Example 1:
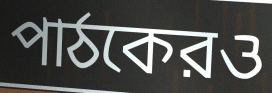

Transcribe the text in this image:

পাঠকেরও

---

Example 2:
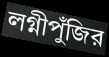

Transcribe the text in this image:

লগ্নীপুঁজির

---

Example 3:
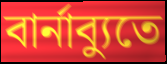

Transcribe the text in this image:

বার্নাব্যুতে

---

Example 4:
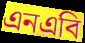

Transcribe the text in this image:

এনএবি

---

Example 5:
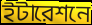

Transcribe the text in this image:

ইটারেশনে